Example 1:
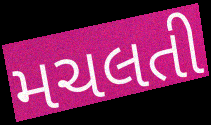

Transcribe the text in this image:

મચલતી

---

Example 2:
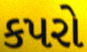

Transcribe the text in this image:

કપરો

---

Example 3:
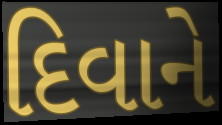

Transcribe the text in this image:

દિવાને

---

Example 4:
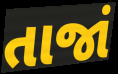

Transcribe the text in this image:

તાજાં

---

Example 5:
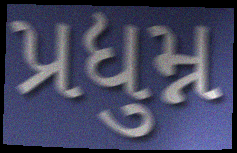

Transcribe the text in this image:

પ્રદ્યુમ્ન